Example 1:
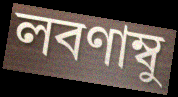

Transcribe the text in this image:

লবণাম্বু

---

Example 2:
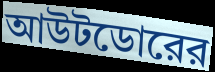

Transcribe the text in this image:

আউটডোরের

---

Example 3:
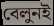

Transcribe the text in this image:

বেলুনই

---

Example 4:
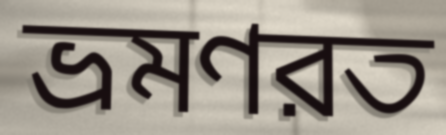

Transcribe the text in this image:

ভ্রমণরত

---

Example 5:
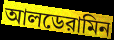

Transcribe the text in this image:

আলডেরামিন